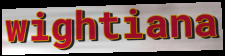
wightiana